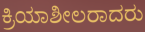
ಕ್ರಿಯಾಶೀಲರಾದರು